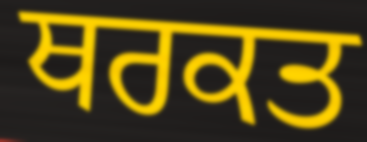
ਥਰਕਤ